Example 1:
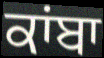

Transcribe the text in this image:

ਕਾਂਬਾ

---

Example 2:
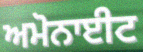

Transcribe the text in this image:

ਅਮੋਨਾਈਟ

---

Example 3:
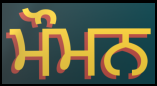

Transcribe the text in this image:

ਮੌਮਨ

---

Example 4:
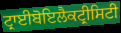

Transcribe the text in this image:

ਟ੍ਰਾਈਬੋਇਲੈਕਟ੍ਰੀਸਿਟੀ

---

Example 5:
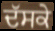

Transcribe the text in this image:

ਦੱਸਕੇ